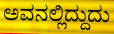
ಅವನಲ್ಲಿದ್ದುದು